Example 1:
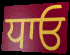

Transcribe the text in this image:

ਧਾਓ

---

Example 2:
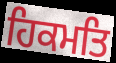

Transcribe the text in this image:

ਹਿਕਮਤਿ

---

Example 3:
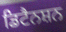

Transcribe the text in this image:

ਡਿਟੈਨਸ਼ਨ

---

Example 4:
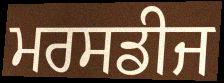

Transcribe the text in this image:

ਮਰਸਡੀਜ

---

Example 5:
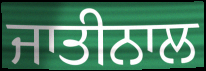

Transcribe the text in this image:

ਜਾਤੀਨਾਲ